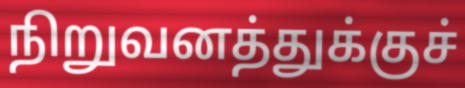
நிறுவனத்துக்குச்